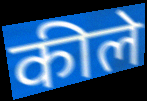
कीले